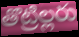
తొట్రిల్లరు